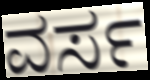
ವರ್ಸ